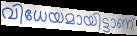
വിധേയമായിട്ടാണ്